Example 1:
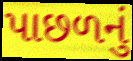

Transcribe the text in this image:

પાછળનું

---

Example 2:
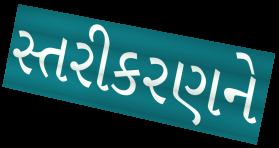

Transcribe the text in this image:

સ્તરીકરણને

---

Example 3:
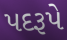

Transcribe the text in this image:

પદરૂપે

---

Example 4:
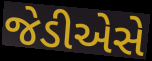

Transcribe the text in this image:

જેડીએસે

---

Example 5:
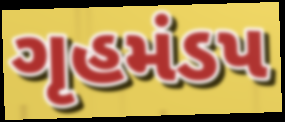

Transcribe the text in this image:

ગૃહમંડપ